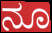
ನೂ